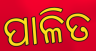
ପାଳିତ